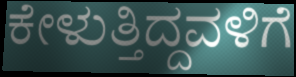
ಕೇಳುತ್ತಿದ್ದವಳಿಗೆ